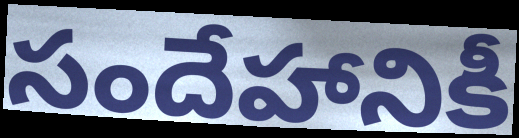
సందేహానికీ